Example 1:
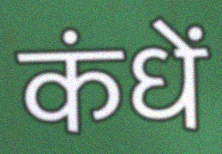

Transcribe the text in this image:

कंधें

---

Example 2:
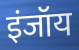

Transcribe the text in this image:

इंजॉय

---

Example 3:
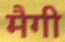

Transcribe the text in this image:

मैगी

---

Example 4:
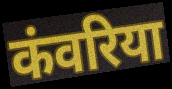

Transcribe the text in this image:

कंवरिया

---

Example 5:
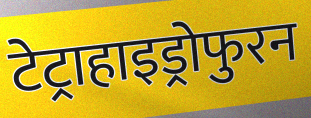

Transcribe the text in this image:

टेट्राहाइड्रोफुरन